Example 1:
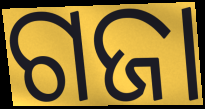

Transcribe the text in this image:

ଗଜା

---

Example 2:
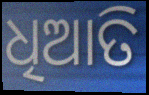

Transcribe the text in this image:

ଧିଆତି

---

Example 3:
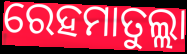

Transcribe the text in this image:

ରେହମାତୁଲ୍ଲା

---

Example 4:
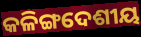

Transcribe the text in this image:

କଳିଙ୍ଗଦେଶୀୟ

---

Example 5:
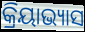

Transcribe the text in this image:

କ୍ରିୟାଭ୍ୟାସ